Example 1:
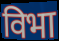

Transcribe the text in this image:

विभा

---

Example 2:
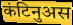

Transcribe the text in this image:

कंटिनुअस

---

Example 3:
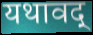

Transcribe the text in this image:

यथावद्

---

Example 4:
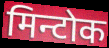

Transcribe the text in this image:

मिन्टोक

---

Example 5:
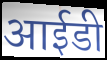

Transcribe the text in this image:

आईडी